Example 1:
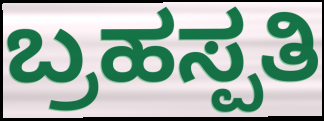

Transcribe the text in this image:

ಬ್ರಹಸ್ಪತಿ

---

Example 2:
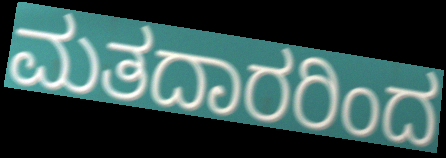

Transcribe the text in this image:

ಮತದಾರರಿಂದ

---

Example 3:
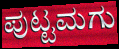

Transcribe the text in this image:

ಪುಟ್ಟಮಗು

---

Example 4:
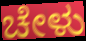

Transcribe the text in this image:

ಚೇಳು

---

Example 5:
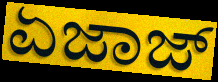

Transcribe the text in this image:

ಏಜಾಜ್